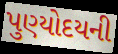
પુણ્યોદયની